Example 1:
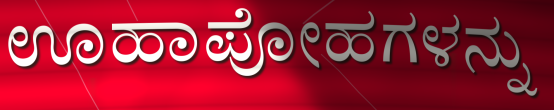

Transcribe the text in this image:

ಊಹಾಪೋಹಗಳನ್ನು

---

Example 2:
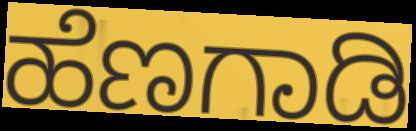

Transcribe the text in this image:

ಹೆಣಗಾಡಿ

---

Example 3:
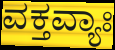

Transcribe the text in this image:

ವಕ್ತವ್ಯಾಃ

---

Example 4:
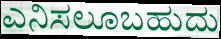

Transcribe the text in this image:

ಎನಿಸಲೂಬಹುದು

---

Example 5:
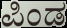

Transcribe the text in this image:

ಪಿಂಡ